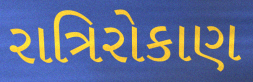
રાત્રિરોકાણ